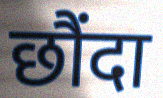
छौंदा